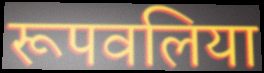
रूपवलिया